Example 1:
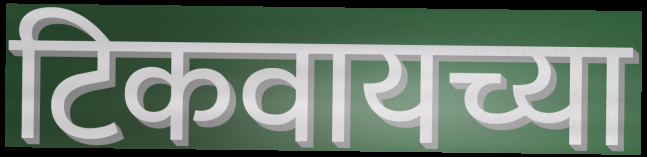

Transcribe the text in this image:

टिकवायच्या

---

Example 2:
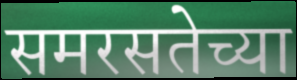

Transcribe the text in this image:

समरसतेच्या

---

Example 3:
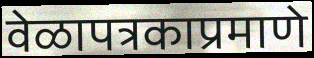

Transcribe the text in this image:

वेळापत्रकाप्रमाणे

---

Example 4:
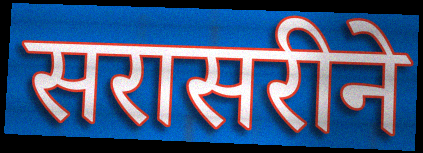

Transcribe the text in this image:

सरासरीने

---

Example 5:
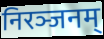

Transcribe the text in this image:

निरञ्जनम्